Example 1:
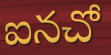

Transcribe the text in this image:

ఐనచో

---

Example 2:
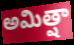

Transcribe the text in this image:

అమిత్షా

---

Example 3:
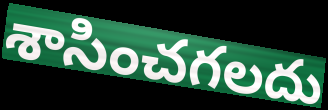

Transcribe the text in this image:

శాసించగలదు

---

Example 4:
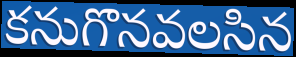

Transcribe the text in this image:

కనుగొనవలసిన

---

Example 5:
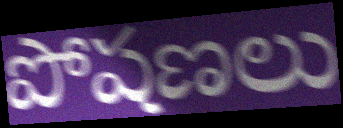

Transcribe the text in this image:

పోషణలు